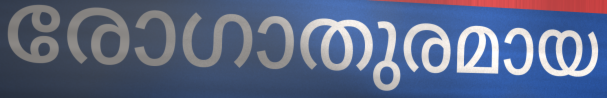
രോഗാതുരമായ